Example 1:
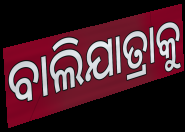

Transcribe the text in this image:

ବାଲିଯାତ୍ରାକୁ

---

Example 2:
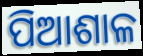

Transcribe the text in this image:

ପିଆଶାଳ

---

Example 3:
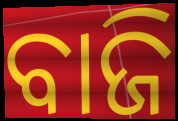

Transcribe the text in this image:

ବାଜି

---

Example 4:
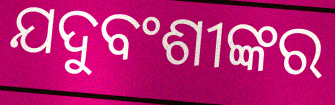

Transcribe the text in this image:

ଯଦୁବଂଶୀଙ୍କର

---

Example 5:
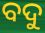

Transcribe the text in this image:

ବଦୁ